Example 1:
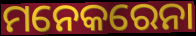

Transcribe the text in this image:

ମନେକରେନା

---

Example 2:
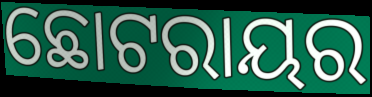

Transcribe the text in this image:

ଛୋଟରାୟର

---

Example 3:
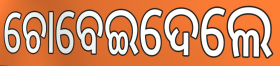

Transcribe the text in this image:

ଚୋବେଇଦେଲେ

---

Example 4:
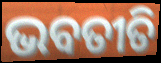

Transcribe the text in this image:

ଭବତୀତି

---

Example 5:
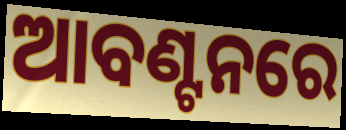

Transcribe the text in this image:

ଆବଣ୍ଟନରେ